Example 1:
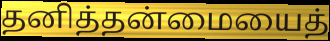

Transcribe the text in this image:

தனித்தன்மையைத்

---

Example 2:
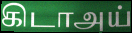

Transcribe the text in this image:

கிடாஅய்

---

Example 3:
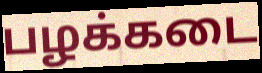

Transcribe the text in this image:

பழக்கடை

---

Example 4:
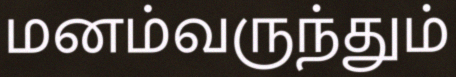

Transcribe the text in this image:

மனம்வருந்தும்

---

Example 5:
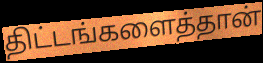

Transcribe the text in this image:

திட்டங்களைத்தான்